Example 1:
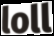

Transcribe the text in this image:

loll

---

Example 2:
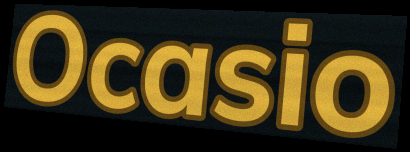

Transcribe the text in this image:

Ocasio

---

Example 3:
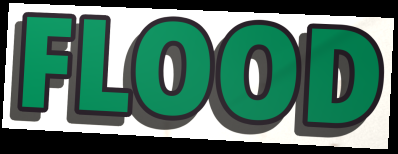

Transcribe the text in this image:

FLOOD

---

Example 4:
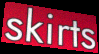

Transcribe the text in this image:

skirts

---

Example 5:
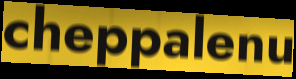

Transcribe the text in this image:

cheppalenu